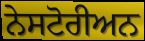
ਨੇਸਟੋਰੀਅਨ